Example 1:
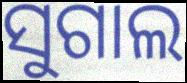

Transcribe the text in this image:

ସୁଗାଲ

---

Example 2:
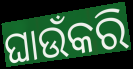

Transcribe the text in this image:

ଘାଉଁକରି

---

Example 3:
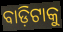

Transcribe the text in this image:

ବାଡ଼ିଟାକୁ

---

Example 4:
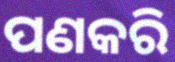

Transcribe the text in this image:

ପଣକରି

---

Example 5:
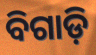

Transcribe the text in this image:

ବିଗାଡ଼ି